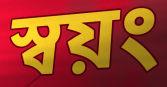
স্বয়ং